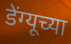
डेंग्यूच्या